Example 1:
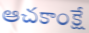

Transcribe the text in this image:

ఆచకాంక్షే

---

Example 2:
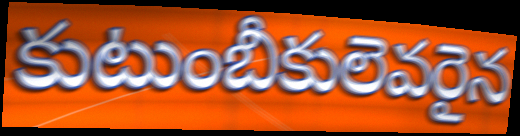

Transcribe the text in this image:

కుటుంబీకులెవరైన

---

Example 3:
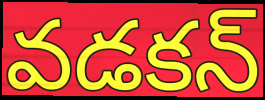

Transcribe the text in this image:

వడకన్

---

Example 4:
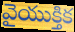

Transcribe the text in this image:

వైయుక్తిక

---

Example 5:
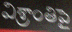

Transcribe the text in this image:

విశ్రాంతిపై